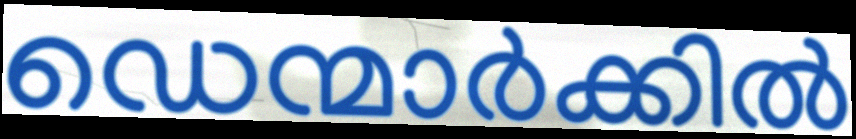
ഡെന്മാർക്കിൽ